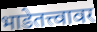
भाडेतत्त्वावर